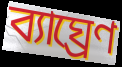
ব্যাঘ্রেণ